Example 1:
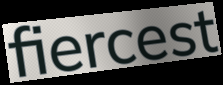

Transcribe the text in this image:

fiercest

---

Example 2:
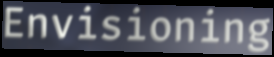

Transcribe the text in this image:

Envisioning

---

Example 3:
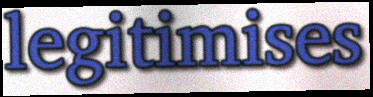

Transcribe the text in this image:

legitimises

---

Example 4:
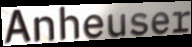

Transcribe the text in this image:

Anheuser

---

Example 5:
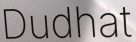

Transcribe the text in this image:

Dudhat